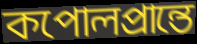
কপোলপ্রান্তে